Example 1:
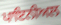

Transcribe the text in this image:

ਪਾਇਨੀਅਲ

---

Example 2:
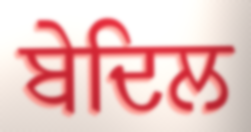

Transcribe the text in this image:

ਬੇਦਿਲ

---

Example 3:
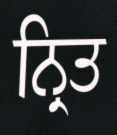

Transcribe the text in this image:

ਨ੍ਰਿਤ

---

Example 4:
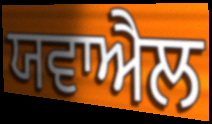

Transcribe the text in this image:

ਯਵਾਐਲ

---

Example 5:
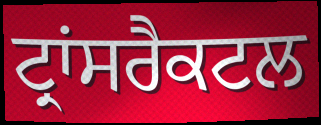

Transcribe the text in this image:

ਟ੍ਰਾਂਸਰੈਕਟਲ